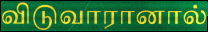
விடுவாரானால்